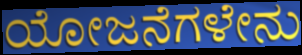
ಯೋಜನೆಗಳೇನು